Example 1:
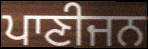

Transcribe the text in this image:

ਪਾਣੀਜਨ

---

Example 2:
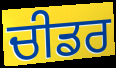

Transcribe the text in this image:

ਚੀਡਰ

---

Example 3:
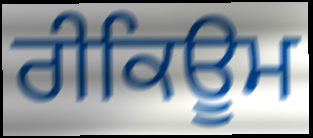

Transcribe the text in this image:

ਰੀਕਿਊਮ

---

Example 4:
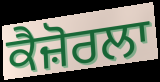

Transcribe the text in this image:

ਕੈਜ਼ੋਰਲਾ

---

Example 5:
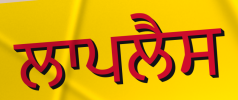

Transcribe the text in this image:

ਲਾਪਲੈਸ